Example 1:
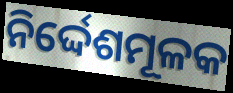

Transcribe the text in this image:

ନିର୍ଦ୍ଦେଶମୂଳକ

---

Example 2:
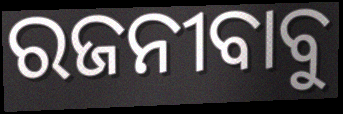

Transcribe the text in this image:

ରଜନୀବାବୁ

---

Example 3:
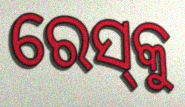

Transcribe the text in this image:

ରେସ୍‌କୁ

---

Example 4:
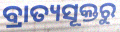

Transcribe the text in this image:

ବ୍ରାତ୍ୟସୂକ୍ତରୁ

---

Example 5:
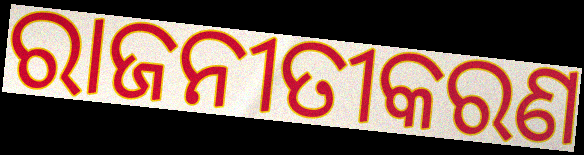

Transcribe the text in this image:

ରାଜନୀତୀକରଣ